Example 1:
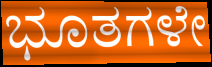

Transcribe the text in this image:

ಭೂತಗಳೇ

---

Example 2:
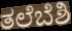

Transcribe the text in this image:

ತಲೆಬೆಶಿ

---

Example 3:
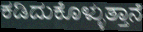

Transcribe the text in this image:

ಕಡಿದುಕೊಳ್ಳುತ್ತಾನೆ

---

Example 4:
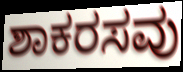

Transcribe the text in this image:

ಶಾಕರಸವು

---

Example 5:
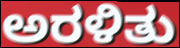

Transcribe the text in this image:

ಅರಳಿತು